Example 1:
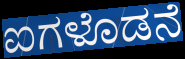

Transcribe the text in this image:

ಐಗಳೊಡನೆ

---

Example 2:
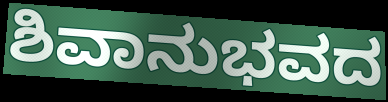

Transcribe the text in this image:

ಶಿವಾನುಭವದ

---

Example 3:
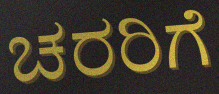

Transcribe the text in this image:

ಚರರಿಗೆ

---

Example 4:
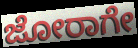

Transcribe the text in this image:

ಜೋರಾಗೇ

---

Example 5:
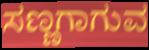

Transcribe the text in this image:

ಸಣ್ಣಗಾಗುವ